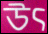
উৎ